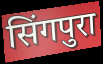
सिंगपुरा